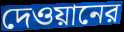
দেওয়ানের